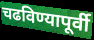
चढविण्यापूर्वी